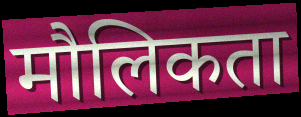
मौलिकता